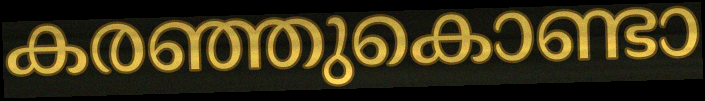
കരഞ്ഞുകൊണ്ടാ